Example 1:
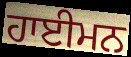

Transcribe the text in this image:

ਹਾਈਮਨ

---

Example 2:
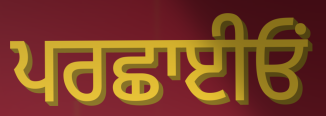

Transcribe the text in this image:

ਪਰਛਾਈਓਂ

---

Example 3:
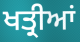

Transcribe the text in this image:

ਖਤ੍ਰੀਆਂ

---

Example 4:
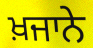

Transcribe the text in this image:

ਖ਼ਜਾਨੇ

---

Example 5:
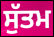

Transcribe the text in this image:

ਸੁੱਤਮ